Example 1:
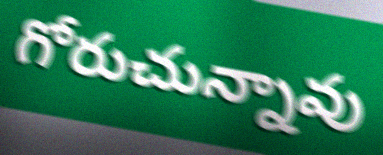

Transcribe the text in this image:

గోరుచున్నావు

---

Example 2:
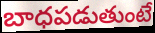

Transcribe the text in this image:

బాధపడుతుంటే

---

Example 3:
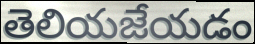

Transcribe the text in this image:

తెలియజేయడం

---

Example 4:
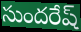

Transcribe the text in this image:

సుందరేష్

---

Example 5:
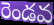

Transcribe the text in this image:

రెండవ